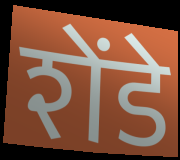
शेंडे